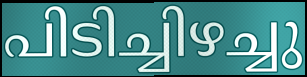
പിടിച്ചിഴച്ചു